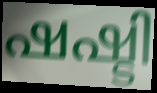
ഷഷ്ടി